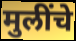
मुलींचे